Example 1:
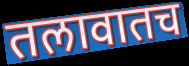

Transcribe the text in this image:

तलावातच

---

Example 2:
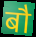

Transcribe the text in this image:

बौ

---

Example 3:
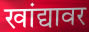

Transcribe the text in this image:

खांद्यावर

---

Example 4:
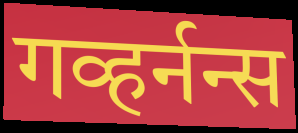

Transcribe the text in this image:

गव्हर्नन्स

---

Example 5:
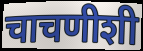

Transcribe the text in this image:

चाचणीशी